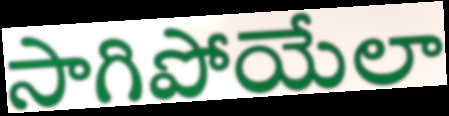
సాగిపోయేలా